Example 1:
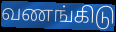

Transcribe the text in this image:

வணங்கிடு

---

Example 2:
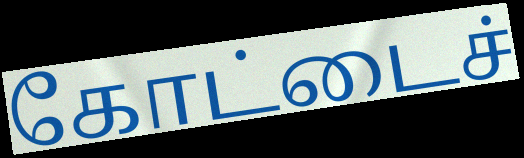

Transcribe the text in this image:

கோட்டைச்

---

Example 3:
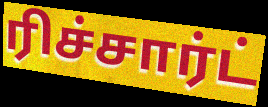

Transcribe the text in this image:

ரிச்சார்ட்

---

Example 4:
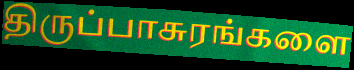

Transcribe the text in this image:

திருப்பாசுரங்களை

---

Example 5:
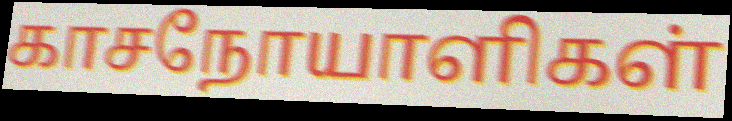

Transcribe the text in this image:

காசநோயாளிகள்